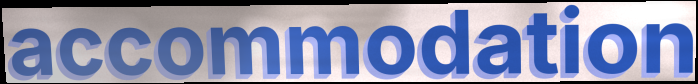
accommodation